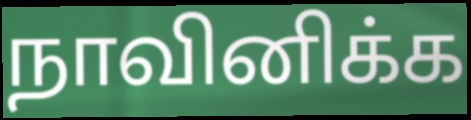
நாவினிக்க